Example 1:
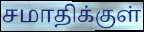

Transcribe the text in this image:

சமாதிக்குள்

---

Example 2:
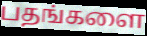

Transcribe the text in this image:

பதங்களை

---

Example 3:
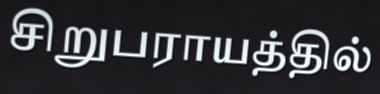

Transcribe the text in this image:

சிறுபராயத்தில்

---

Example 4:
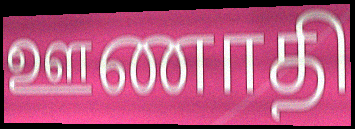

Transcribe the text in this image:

ஊணாதி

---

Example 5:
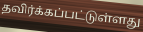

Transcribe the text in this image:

தவிர்க்கப்பட்டுள்ளது